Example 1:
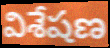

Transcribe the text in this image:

విశేషణ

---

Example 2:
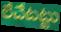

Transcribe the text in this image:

లేచేటట్టు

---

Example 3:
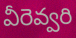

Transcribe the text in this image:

వీరెవ్వరి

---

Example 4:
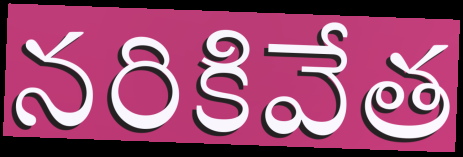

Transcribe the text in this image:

నరికివేత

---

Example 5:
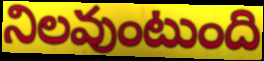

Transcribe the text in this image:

నిలవుంటుంది